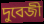
দুবেজী